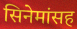
सिनेमांसह